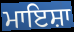
ਮਾਇਸ਼ਾ